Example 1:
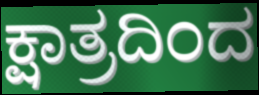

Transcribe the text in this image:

ಕ್ಷಾತ್ರದಿಂದ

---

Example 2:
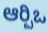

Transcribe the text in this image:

ಆರ್‍ಪಿಒ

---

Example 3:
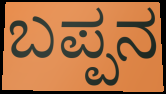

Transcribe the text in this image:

ಬಪ್ಪನ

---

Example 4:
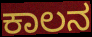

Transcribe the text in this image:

ಕಾಲನ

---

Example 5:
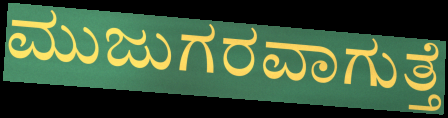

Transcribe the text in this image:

ಮುಜುಗರವಾಗುತ್ತೆ